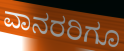
ವಾನರರಿಗೂ